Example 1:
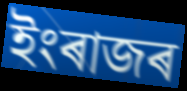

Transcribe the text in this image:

ইংৰাজৰ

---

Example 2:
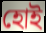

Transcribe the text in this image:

হোই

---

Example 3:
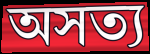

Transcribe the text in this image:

অসত্য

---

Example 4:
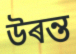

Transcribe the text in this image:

উৰন্ত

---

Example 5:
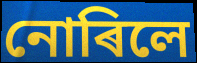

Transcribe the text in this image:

নোৰিলে